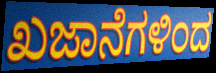
ಖಜಾನೆಗಳಿಂದ